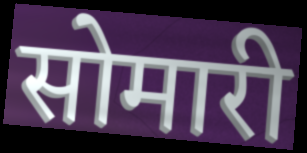
सोमारी